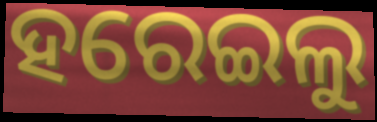
ହରେଇଲୁ